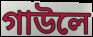
গাউলে